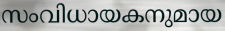
സംവിധായകനുമായ